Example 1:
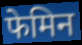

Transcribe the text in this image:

फेमिन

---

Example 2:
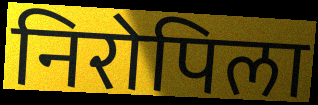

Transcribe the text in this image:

निरोपिला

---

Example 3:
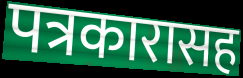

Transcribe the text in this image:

पत्रकारासह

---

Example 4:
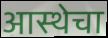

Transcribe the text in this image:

आस्थेचा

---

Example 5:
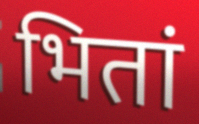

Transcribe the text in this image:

भितां